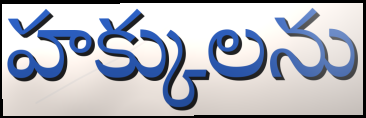
హక్కులను